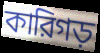
কারিগড়